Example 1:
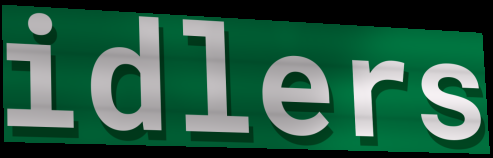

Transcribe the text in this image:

idlers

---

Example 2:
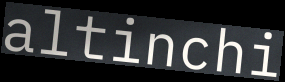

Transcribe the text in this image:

altinchi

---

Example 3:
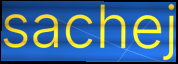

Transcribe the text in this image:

sachej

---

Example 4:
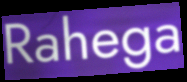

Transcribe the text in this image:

Rahega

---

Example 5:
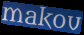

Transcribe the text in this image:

makou